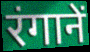
रंगानें